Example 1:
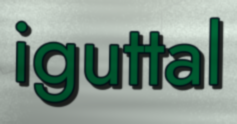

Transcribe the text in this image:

iguttal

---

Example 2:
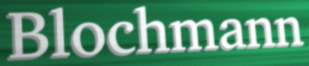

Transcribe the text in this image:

Blochmann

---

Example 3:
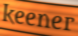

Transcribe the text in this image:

keener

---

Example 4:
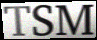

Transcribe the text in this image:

TSM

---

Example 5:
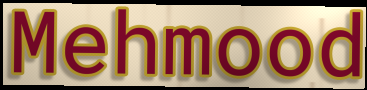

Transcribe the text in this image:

Mehmood